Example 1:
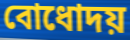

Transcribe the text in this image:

বোধোদয়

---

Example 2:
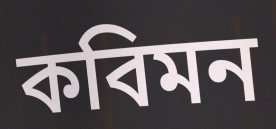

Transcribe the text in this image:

কবিমন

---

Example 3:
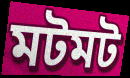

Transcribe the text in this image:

মটমট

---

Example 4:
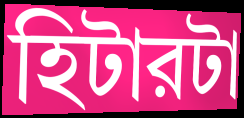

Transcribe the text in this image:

হিটারটা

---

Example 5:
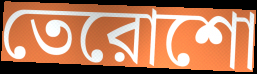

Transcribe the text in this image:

তেরোশো